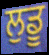
ਲੁਡੂ